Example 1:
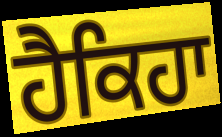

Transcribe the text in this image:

ਹੈਕਿਹਾ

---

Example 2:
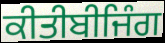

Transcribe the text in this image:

ਕੀਤੀਬੀਜਿੰਗ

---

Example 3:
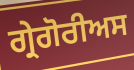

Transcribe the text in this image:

ਗ੍ਰੇਗੋਰੀਅਸ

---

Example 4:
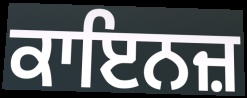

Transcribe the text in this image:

ਕਾਇਨਜ਼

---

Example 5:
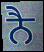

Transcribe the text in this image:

ਨੈ